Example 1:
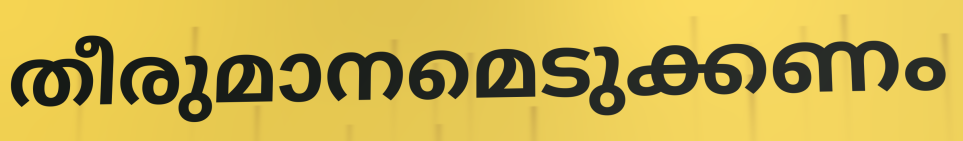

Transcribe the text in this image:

തീരുമാനമെടുക്കണം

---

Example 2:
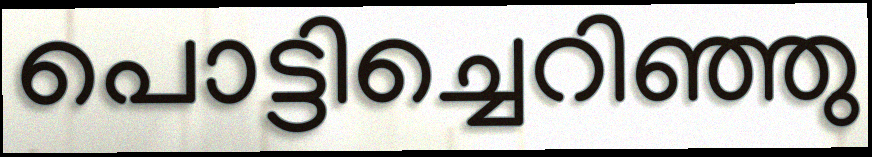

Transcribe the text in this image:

പൊട്ടിച്ചെറിഞ്ഞു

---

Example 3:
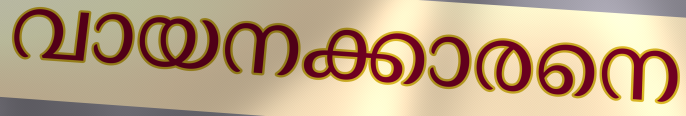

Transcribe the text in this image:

വായനക്കാരനെ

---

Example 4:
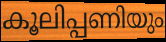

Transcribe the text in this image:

കൂലിപ്പണിയും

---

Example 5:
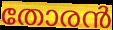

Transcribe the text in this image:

തോരൻ